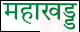
महाखड्ड